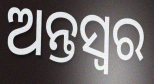
ଅନ୍ତସ୍ୱର